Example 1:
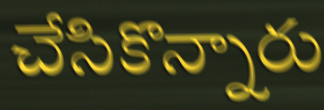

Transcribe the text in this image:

చేసికొన్నారు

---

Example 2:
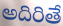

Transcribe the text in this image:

అదిరితే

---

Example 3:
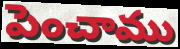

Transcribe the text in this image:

పెంచాము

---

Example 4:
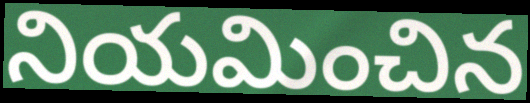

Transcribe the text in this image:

నియమించిన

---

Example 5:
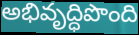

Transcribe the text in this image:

అభివృద్ధిపొంది